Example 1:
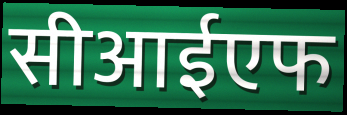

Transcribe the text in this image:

सीआईएफ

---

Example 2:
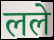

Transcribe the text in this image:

लले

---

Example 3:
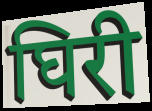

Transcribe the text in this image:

घिरी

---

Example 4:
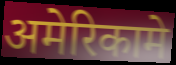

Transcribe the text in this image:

अमेरिकामे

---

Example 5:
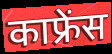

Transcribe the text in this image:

काफ्रेंस